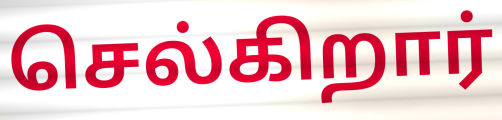
செல்கிறார்